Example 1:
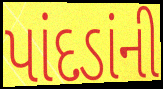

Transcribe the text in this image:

પાંદડાંની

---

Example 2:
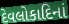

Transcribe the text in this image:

દેવલોકાદિનાં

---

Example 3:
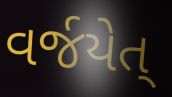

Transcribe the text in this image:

વર્જયેત્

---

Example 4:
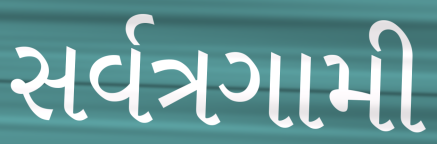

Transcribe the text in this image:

સર્વત્રગામી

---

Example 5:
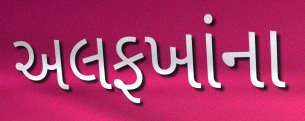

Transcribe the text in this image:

અલફખાંના